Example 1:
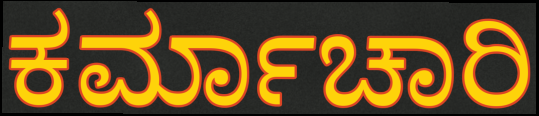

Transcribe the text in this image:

ಕರ್ಮಾಚಾರಿ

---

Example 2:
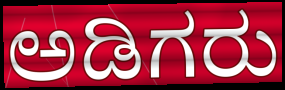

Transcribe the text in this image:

ಅಡಿಗರು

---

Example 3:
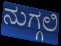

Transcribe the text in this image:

ನುಗ್ಗಲಿ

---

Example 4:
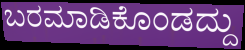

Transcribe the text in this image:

ಬರಮಾಡಿಕೊಂಡದ್ದು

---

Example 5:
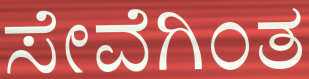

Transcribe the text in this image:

ಸೇವೆಗಿಂತ